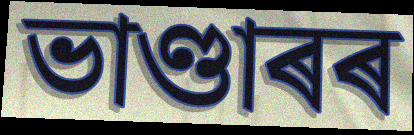
ভাণ্ডাৰৰ